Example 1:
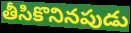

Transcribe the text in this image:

తీసికొనినపుడు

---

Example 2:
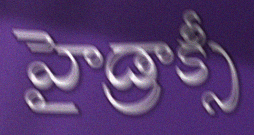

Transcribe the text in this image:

హైడ్రాక్సీ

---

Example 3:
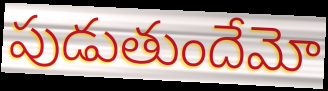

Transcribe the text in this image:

పుడుతుందేమో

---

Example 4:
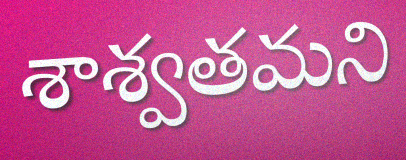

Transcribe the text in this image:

శాశ్వతమని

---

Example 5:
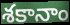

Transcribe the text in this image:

శకానాం